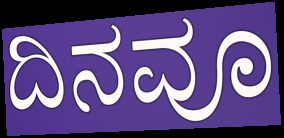
ದಿನವೂ